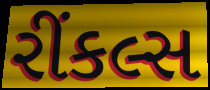
રીંકલ્સ